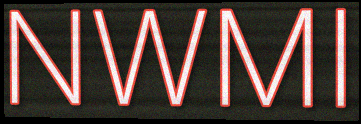
NWMI